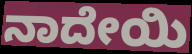
ನಾದೇಯಿ